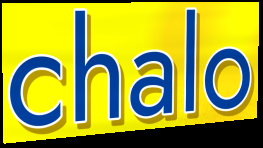
chalo